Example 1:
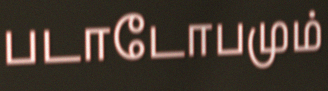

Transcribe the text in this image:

படாடோபமும்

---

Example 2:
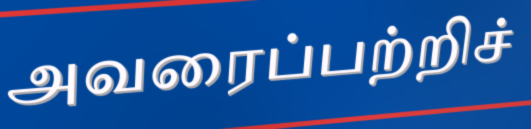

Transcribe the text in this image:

அவரைப்பற்றிச்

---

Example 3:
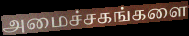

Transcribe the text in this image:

அமைச்சகங்களை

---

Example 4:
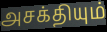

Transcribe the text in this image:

அசக்தியும்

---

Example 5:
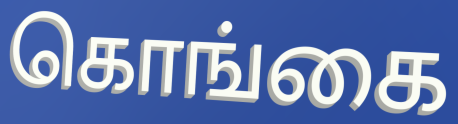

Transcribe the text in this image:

கொங்கை